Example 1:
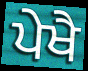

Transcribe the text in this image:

ਪੇਖੈ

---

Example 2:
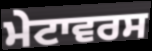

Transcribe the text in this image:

ਮੇਟਾਵਰਸ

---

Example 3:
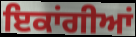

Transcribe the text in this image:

ਇਕਾਂਗੀਆਂ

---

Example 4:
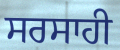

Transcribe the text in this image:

ਸਰਸਾਹੀ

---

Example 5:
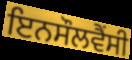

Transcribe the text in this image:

ਇਨਸੌਲਵੈਂਸੀ